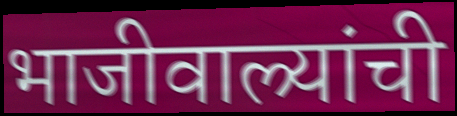
भाजीवाल्यांची